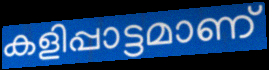
കളിപ്പാട്ടമാണ്